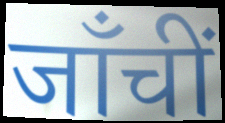
जाँचीं